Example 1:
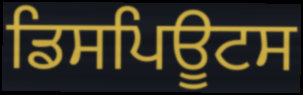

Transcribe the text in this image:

ਡਿਸਪਿਊਟਸ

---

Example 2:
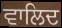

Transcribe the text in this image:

ਵਾਲਿਦ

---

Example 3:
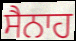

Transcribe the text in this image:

ਸੈਨਾਹ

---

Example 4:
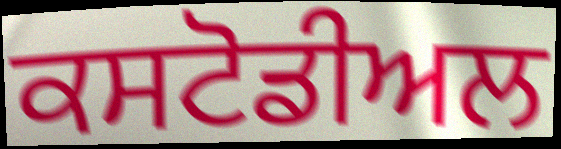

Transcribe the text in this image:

ਕਸਟੋਡੀਅਲ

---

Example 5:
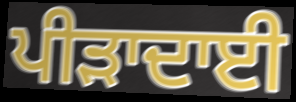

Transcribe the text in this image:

ਪੀੜਾਦਾਈ